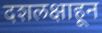
दशलक्षाहून